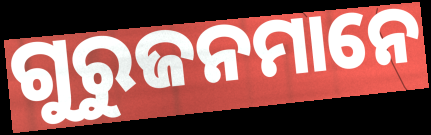
ଗୁରୁଜନମାନେ